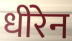
धीरेन